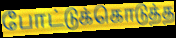
போட்டுக்கொடுத்த